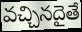
వచ్చినదైతే